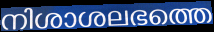
നിശാശലഭത്തെ